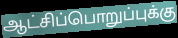
ஆட்சிப்பொறுப்புக்கு